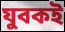
যুবকই